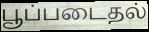
பூப்படைதல்